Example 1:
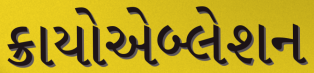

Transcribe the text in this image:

ક્રાયોએબ્લેશન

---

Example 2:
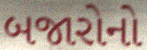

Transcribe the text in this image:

બજારોનો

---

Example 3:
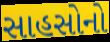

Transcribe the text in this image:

સાહસોનો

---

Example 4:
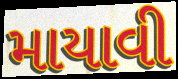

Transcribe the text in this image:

માયાવી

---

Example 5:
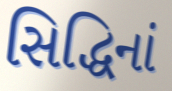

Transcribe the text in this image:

સિદ્ધિનાં